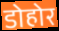
डोहोर